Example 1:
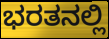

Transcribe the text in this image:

ಭರತನಲ್ಲಿ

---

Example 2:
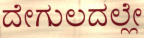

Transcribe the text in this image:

ದೇಗುಲದಲ್ಲೇ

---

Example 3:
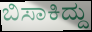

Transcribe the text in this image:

ಬಿಸಾಕಿದ್ದು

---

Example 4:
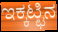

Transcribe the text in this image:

ಇಕ್ಕಟ್ಟಿನ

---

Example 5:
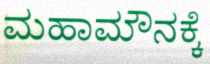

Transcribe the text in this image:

ಮಹಾಮೌನಕ್ಕೆ